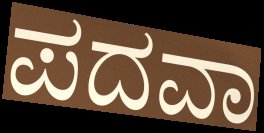
ಪದವಾ